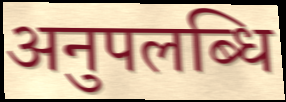
अनुपलब्धि